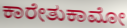
ಕಾರೇತುಕಾಮೋ